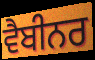
ਵੈਬੀਨਰ